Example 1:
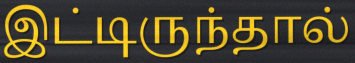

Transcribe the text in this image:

இட்டிருந்தால்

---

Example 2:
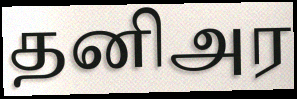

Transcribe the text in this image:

தனிஅர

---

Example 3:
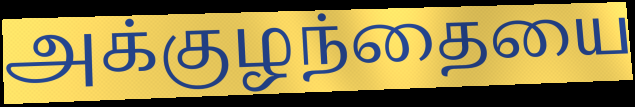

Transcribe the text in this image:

அக்குழந்தையை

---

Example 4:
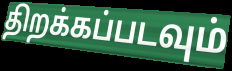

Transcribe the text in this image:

திறக்கப்படவும்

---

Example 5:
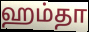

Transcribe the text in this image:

ஹம்தா